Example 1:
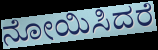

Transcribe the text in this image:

ನೋಯಿಸಿದರೆ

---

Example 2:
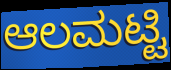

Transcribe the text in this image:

ಆಲಮಟ್ಟಿ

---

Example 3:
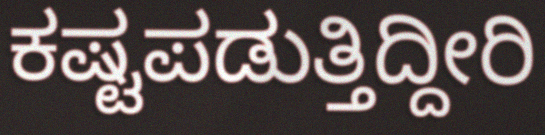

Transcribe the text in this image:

ಕಷ್ಟಪಡುತ್ತಿದ್ದೀರಿ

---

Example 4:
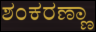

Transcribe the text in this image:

ಶಂಕರಣ್ಣಾ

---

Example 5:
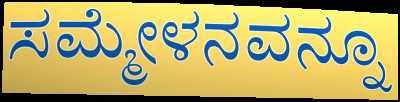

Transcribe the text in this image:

ಸಮ್ಮೇಳನವನ್ನೂ